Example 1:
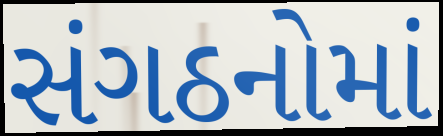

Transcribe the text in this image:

સંગઠનોમાં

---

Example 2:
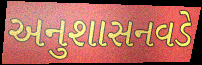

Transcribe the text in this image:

અનુશાસનવડે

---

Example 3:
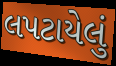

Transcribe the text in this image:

લપટાયેલું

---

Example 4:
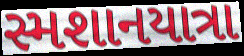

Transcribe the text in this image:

સ્મશાનયાત્રા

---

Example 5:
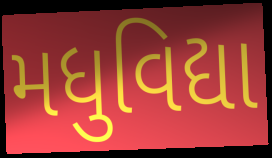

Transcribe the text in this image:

મધુવિદ્યા